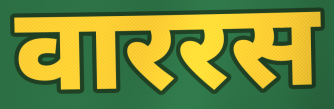
वाररस